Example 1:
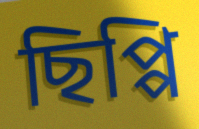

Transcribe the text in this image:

ছিপ্পি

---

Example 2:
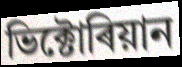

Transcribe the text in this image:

ভিক্টোৰিয়ান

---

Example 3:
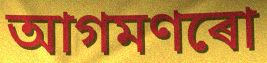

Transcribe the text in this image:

আগমণৰো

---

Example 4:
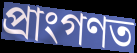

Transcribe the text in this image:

প্ৰাংগণত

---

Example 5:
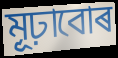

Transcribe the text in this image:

মূঢ়াবোৰ